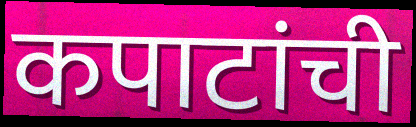
कपाटांची